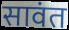
सावंत